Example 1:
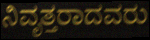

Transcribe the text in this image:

ನಿವೃತ್ತರಾದವರು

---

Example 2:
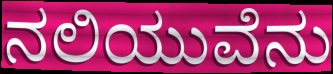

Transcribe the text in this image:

ನಲಿಯುವೆನು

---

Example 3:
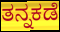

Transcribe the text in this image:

ತನ್ನಕಡೆ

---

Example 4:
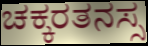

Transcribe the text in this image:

ಚಕ್ಕರತನಸ್ಸ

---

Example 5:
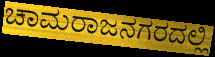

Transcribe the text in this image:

ಚಾಮರಾಜನಗರದಲ್ಲಿ